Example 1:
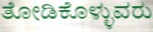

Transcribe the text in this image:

ತೋಡಿಕೊಳ್ಳುವರು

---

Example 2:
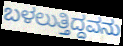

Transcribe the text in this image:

ಬಳಲುತ್ತಿದ್ದವನು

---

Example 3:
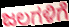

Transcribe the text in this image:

ಜಲಗಳಿಗೆ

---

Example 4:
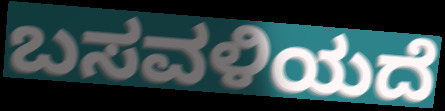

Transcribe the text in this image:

ಬಸವಳಿಯದೆ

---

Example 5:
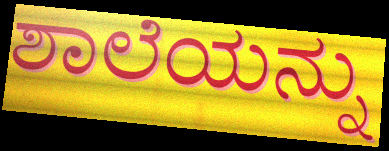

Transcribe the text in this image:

ಶಾಲೆಯನ್ನು